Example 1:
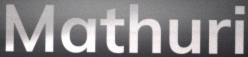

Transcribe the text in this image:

Mathuri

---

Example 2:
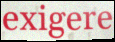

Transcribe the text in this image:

exigere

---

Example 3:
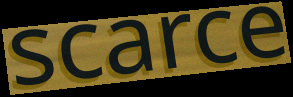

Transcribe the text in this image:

scarce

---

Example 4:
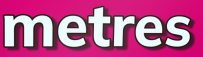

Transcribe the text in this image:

metres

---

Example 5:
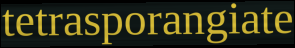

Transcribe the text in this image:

tetrasporangiate